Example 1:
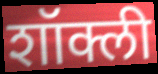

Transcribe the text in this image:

शॉक्ली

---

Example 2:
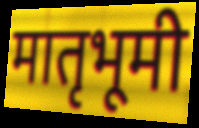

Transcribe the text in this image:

मातृभूमी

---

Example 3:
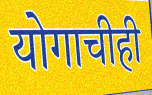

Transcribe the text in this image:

योगाचीही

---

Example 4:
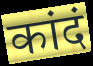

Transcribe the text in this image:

कांदं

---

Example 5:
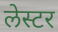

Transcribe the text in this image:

लेस्टर